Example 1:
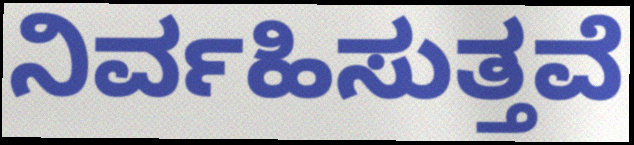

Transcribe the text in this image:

ನಿರ್ವಹಿಸುತ್ತವೆ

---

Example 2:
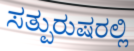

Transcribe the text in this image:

ಸತ್ಪುರುಷರಲ್ಲಿ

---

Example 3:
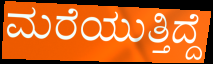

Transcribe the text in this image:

ಮರೆಯುತ್ತಿದ್ದೆ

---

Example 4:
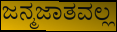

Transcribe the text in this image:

ಜನ್ಮಜಾತವಲ್ಲ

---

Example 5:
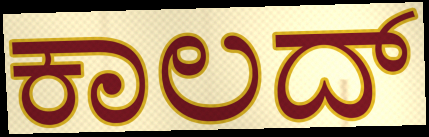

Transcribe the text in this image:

ಕಾಲದ್